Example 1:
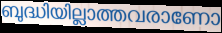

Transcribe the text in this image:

ബുദ്ധിയില്ലാത്തവരാണോ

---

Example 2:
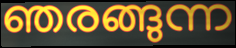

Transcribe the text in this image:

ഞരങ്ങുന്ന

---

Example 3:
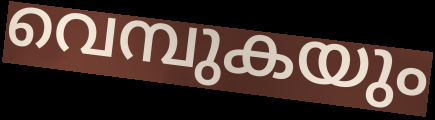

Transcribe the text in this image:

വെമ്പുകയും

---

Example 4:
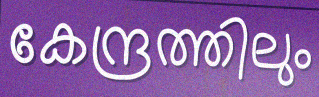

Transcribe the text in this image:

കേന്ദ്രത്തിലും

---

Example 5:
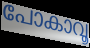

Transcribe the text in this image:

പോകാവൂ